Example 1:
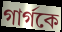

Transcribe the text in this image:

গার্গকে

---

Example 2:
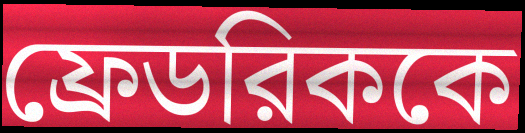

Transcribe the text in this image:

ফ্রেডরিককে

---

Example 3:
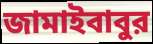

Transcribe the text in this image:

জামাইবাবুর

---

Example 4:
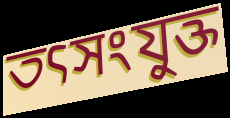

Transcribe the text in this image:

তৎসংযুক্ত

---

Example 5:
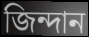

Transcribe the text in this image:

জিন্দান